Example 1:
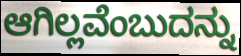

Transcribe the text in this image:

ಆಗಿಲ್ಲವೆಂಬುದನ್ನು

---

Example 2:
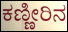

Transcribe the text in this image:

ಕಣ್ಣೀರಿನ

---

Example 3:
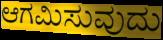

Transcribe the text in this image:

ಆಗಮಿಸುವುದು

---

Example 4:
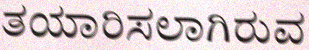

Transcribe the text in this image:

ತಯಾರಿಸಲಾಗಿರುವ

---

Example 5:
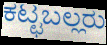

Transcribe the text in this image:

ಕಟ್ಟಬಲ್ಲರು